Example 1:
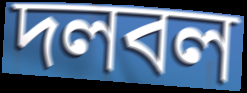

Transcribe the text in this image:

দলবল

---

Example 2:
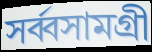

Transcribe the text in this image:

সর্ব্বসামগ্রী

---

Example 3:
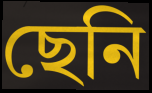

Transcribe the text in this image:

ছেনি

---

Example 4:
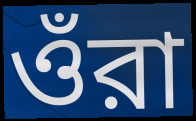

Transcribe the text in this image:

ওঁরা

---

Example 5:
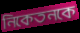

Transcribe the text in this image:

নিকেতনকে